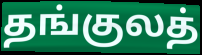
தங்குலத்